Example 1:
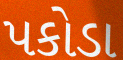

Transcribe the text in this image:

પકોડા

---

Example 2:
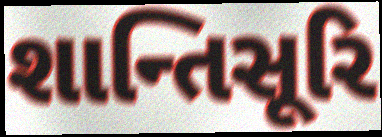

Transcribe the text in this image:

શાન્તિસૂરિ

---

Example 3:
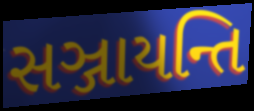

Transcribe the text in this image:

સઞ્જાયન્તિ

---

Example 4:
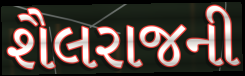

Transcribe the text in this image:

શૈલરાજની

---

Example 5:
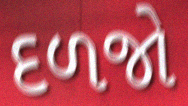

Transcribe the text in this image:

દળજો